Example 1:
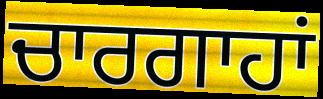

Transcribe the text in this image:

ਚਾਰਗਾਹਾਂ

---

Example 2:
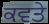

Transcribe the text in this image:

ਕਵਤੇ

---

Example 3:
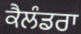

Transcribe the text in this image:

ਕੈਲੰਡਰਾ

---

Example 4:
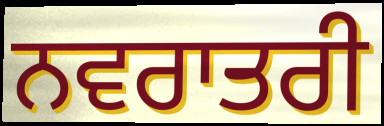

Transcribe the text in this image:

ਨਵਰਾਤਰੀ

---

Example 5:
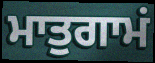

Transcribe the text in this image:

ਮਾਤੁਗਾਮਂ